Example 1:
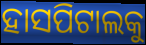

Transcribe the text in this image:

ହାସପିଟାଲକୁ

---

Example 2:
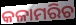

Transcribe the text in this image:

କଳାମରିଚ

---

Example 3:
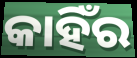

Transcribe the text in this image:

କାହିଁର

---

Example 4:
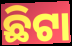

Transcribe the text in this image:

ଛିଟା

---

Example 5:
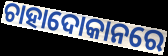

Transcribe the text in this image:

ଚାହାଦୋକାନରେ